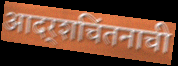
आदर्शचिंतनाची